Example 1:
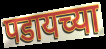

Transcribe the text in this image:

पडायच्या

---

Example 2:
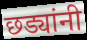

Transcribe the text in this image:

छड्यांनी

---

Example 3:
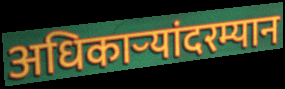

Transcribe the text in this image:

अधिकाऱ्यांदरम्यान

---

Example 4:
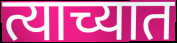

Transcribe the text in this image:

त्याच्यात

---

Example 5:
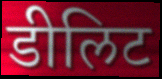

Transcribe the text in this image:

डीलिट